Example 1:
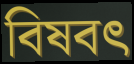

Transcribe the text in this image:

বিষবৎ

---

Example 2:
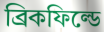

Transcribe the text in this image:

ব্রিকফিল্ডে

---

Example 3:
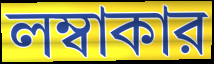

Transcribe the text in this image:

লম্বাকার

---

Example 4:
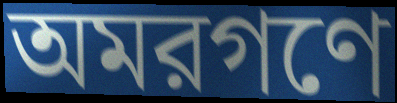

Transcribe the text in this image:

অমরগণে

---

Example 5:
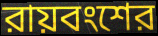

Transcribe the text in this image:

রায়বংশের